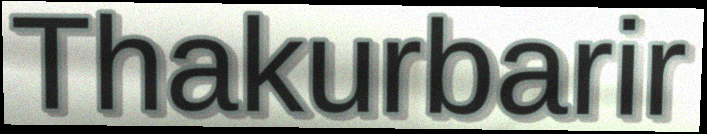
Thakurbarir